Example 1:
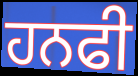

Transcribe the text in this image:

ਹਨਫੀ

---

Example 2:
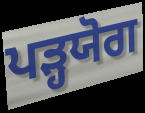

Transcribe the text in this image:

ਪੜ੍ਹਯੋਗ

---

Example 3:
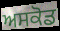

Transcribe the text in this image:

ਅਸਕੋਡ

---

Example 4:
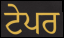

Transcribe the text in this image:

ਟੇਪਰ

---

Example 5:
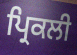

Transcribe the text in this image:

ਪ੍ਰਿਕਲੀ